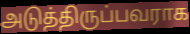
அடுத்திருப்பவராக